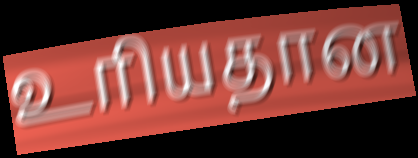
உரியதான